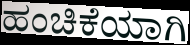
ಹಂಚಿಕೆಯಾಗಿ